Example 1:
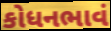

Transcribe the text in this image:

કોધનભાવં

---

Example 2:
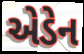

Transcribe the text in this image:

એડેન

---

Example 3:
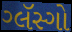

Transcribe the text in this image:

ગ્લૅસ્ગો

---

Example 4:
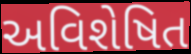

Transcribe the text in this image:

અવિશેષિત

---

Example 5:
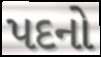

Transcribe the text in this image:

પદનો